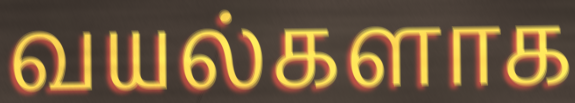
வயல்களாக